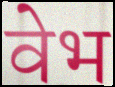
वेभ